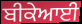
ਬੀਕੇਆਈ